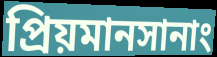
প্রিয়মানসানাং